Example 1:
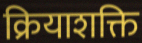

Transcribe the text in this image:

क्रियाशक्ति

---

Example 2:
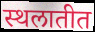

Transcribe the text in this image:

स्थलातीत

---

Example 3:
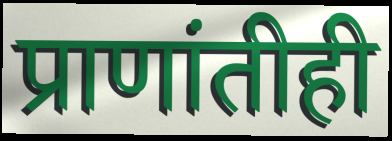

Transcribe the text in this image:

प्राणांतीही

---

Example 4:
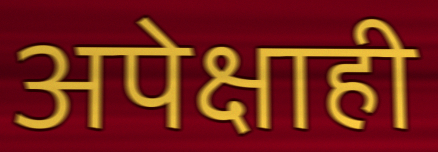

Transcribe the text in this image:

अपेक्षाही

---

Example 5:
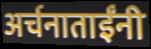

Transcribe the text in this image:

अर्चनाताईंनी